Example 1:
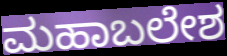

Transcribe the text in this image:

ಮಹಾಬಲೇಶ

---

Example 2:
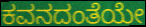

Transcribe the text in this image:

ಕವನದಂತೆಯೇ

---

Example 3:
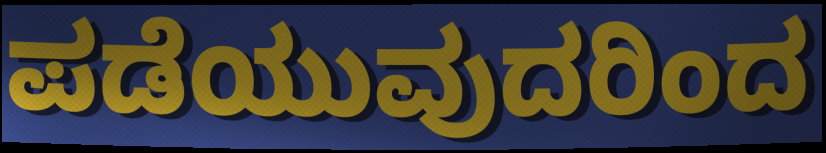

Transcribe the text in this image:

ಪಡೆಯುವುದರಿಂದ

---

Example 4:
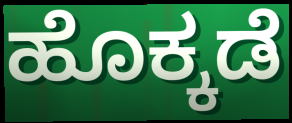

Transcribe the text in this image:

ಹೊಕ್ಕಡೆ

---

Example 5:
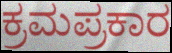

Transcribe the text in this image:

ಕ್ರಮಪ್ರಕಾರ